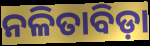
ନଳିତାବିଡ଼ା